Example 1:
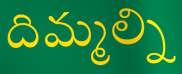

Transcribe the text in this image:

దిమ్మల్ని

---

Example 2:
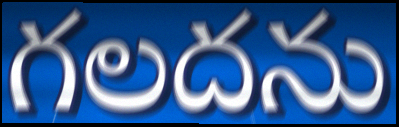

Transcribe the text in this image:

గలదను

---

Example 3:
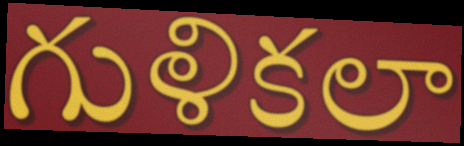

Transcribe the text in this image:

గుళికలా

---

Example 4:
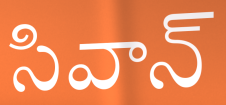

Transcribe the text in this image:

సివాన్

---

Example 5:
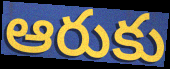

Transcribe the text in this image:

ఆరుకు